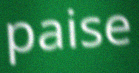
paise